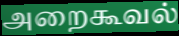
அறைகூவல்